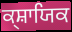
ਕ੍ਸ਼ਾਯਿਕ